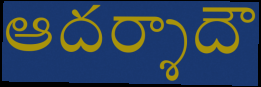
ఆదర్శాదౌ